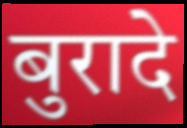
बुरादे